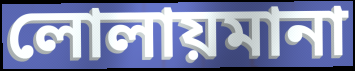
লোলায়মানা